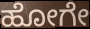
ಹೋಗೇ